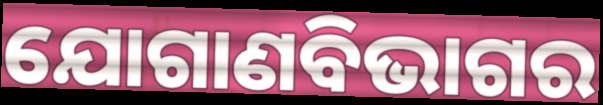
ଯୋଗାଣବିଭାଗର